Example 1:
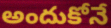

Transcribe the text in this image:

అందుకోనే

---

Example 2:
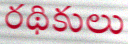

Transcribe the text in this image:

రథికులు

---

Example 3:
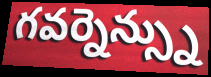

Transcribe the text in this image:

గవర్నెన్స్ను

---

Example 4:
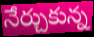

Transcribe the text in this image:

నేర్చుకున్న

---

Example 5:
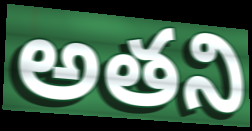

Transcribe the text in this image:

అతని